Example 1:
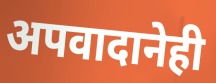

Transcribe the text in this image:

अपवादानेही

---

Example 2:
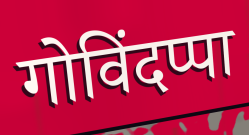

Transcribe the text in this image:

गोविंदप्पा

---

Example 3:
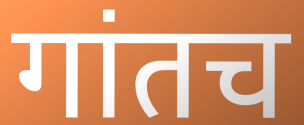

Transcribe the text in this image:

गांतच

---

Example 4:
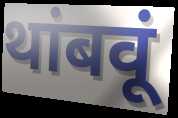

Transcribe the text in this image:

थांबवूं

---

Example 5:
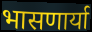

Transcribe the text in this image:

भासणार्या